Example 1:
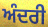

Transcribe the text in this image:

ਅੰਦਰੀ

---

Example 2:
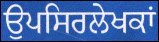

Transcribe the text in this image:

ਉਪਸਿਰਲੇਖਕਾਂ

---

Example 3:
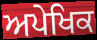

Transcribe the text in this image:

ਅਪੇਖਿਕ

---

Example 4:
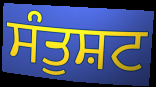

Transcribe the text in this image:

ਸੰਤੁਸ਼ਟ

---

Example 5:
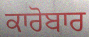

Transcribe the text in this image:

ਕਾਰੋਬਾਰ